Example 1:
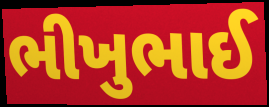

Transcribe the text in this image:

ભીખુભાઈ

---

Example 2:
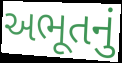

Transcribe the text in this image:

અભૂતનું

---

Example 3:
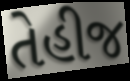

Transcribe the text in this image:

તેહીજ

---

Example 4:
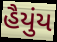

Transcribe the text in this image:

હૈયુંય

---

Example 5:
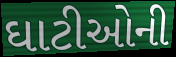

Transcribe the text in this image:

ઘાટીઓની